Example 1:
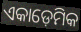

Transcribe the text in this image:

ଏକାଡ଼େମିକ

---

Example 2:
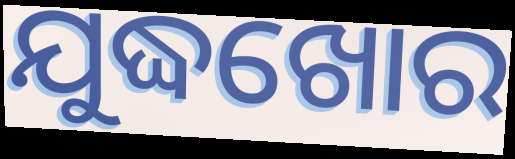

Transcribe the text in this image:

ଯୁଦ୍ଧଖୋର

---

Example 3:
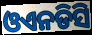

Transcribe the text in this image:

ଓଏନଡିସି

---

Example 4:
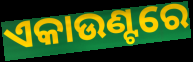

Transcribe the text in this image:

ଏକାଉଣ୍ଟରେ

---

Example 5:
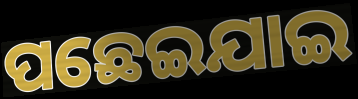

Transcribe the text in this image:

ପଛେଇଯାଇ